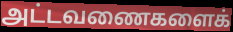
அட்டவணைகளைக்